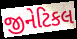
જીનેટિકલ